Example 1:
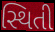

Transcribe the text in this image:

સ્થિતી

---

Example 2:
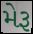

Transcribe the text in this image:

મેરૂ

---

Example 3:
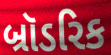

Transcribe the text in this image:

બ્રૉડરિક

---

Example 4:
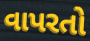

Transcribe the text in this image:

વાપરતો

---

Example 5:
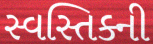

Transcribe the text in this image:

સ્વસ્તિક્ની